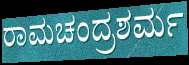
ರಾಮಚಂದ್ರಶರ್ಮ